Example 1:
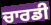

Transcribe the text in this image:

ਚਾਰਡੀ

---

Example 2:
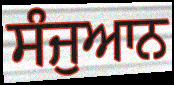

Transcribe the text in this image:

ਸੰਜੁਆਨ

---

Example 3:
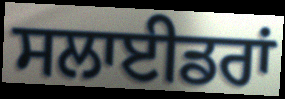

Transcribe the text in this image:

ਸਲਾਈਡਰਾਂ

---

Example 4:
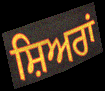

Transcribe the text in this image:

ਸ਼ਿਅਰਾਂ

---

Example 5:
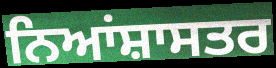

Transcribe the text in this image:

ਨਿਆਂਸ਼ਾਸਤਰ